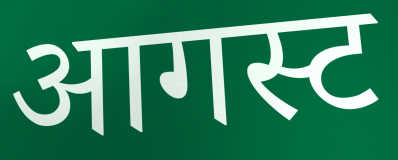
आगस्ट